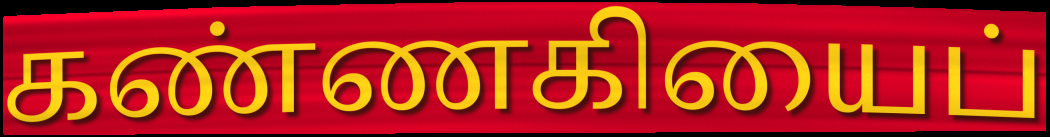
கண்ணகியைப்